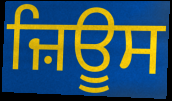
ਜ਼ਿਊਸ